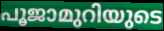
പൂജാമുറിയുടെ